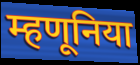
म्हणूनिया